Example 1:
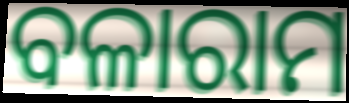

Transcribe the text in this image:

ବଳାରାମ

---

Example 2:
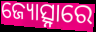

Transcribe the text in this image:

ଜ୍ୟୋତ୍ସ୍ନାରେ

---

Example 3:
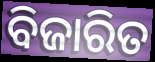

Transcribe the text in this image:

ବିଜାରିତ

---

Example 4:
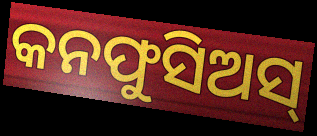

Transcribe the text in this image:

କନଫୁସିଅସ୍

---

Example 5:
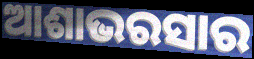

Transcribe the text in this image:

ଆଶାଭରସାର